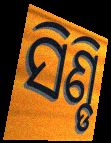
ସିଣ୍ଡି